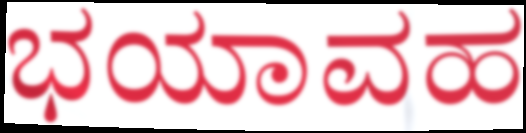
ಭಯಾವಹ